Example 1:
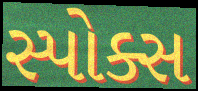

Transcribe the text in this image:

સ્પોક્સ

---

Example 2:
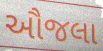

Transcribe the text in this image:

ઔજલા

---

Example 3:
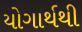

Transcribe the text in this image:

યોગાર્થથી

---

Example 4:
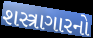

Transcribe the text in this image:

શસ્ત્રાગારનો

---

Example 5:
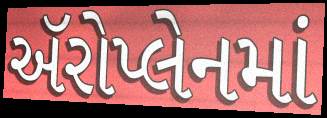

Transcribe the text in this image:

ઍરોપ્લેનમાં